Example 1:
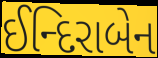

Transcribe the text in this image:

ઈન્દિરાબેન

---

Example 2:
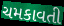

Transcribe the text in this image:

ચમકાવતી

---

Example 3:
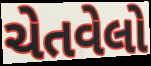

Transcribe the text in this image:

ચેતવેલો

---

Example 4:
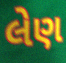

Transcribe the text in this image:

લેણ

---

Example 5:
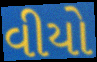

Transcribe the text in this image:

વીયો